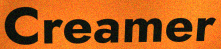
Creamer